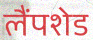
लैंपशेड